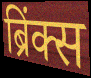
ब्रिंक्स